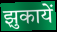
झुकायें